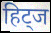
हिट्ज